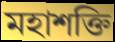
মহাশক্তি